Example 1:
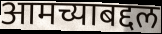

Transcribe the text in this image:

आमच्याबद्दल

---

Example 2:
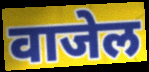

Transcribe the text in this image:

वाजेल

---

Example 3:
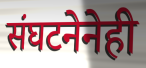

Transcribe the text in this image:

संघटनेनेही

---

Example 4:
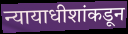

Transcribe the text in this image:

न्यायाधीशांकडून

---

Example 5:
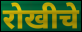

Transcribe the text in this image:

रोखीचे